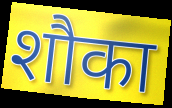
शौका